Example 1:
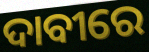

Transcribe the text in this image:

ଦାବୀରେ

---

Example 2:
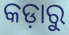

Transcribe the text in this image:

କଡ଼ାରୁ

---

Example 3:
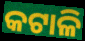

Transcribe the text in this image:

କଟାଳି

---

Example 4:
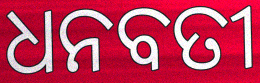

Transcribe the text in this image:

ଧନବତୀ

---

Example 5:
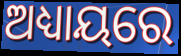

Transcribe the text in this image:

ଅଧ୍ଯାୟରେ